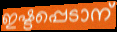
ഇഷ്ടപ്പെടാന്